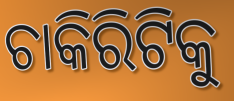
ଚାକିରିଟିକୁ